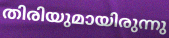
തിരിയുമായിരുന്നു